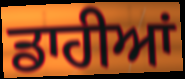
ਡਾਹੀਆਂ